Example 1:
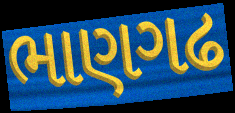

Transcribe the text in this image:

ભાણગઢ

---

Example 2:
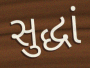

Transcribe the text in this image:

સુદ્ધાં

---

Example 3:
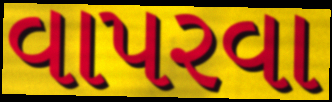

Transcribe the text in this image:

વાપરવા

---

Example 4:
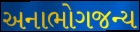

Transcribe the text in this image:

અનાભોગજન્ય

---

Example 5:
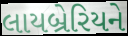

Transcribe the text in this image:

લાયબ્રેરિયને